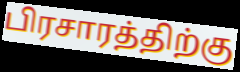
பிரசாரத்திற்கு